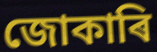
জোকাৰি